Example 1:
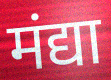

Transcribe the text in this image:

मंद्या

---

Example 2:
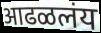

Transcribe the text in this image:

आढळलंय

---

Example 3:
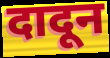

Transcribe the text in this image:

दादून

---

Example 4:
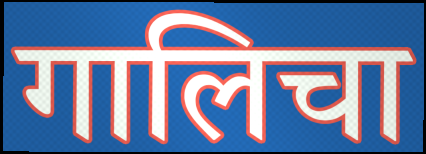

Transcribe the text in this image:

गालिचा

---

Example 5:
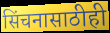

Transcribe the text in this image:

सिंचनासाठीही